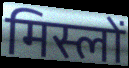
मिस्लों